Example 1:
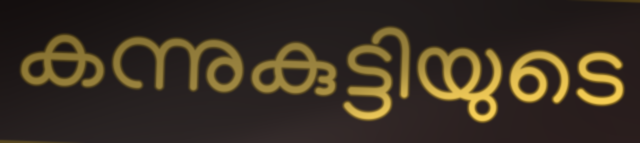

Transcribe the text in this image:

കന്നുകുട്ടിയുടെ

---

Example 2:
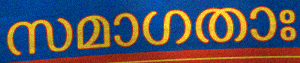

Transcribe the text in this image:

സമാഗതാഃ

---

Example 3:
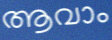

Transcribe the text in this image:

ആവാം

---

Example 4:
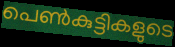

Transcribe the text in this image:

പെൺകുട്ടികളുടെ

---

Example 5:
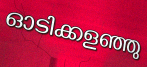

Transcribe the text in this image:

ഓടിക്കളഞ്ഞു